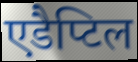
एडैप्टिल